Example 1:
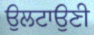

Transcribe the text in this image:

ਉਲਟਾਉਣੀ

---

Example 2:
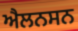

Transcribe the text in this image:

ਐਲਨਸਨ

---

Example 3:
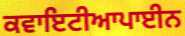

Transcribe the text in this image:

ਕਵਾਇਟੀਆਪਾਈਨ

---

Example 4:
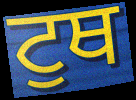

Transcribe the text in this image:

ਟੁਥ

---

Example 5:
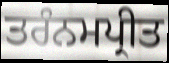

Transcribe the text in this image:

ਤਰੰਨਮਪ੍ਰੀਤ